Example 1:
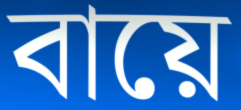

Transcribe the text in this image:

বায়ে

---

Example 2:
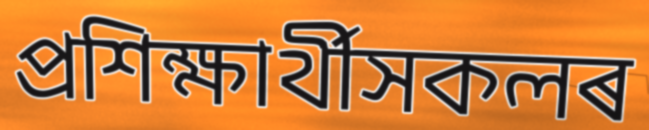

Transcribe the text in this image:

প্ৰশিক্ষাৰ্থীসকলৰ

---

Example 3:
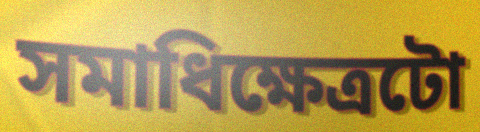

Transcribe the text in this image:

সমাধিক্ষেত্ৰটো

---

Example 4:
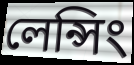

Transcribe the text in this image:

লেন্সিং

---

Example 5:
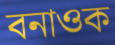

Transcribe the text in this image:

বনাওক